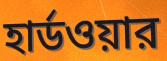
হার্ডওয়ার